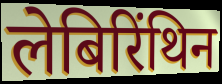
लेबिरिंथिन